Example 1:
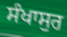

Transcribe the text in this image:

ਸੰਖਾਸੁਰ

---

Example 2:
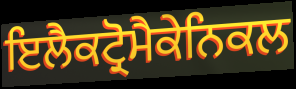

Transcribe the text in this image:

ਇਲੈਕਟ੍ਰੋਮੈਕੇਨਿਕਲ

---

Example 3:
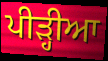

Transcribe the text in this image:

ਪੀੜ੍ਹੀਆ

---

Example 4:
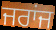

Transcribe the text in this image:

ਜਰਾਂਜ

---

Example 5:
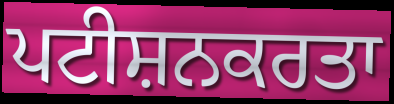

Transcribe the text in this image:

ਪਟੀਸ਼ਨਕਰਤਾ